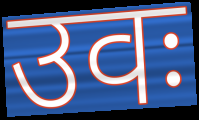
उवः